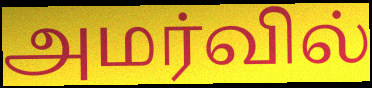
அமர்வில்